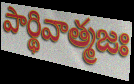
పార్థివాత్మజః